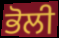
ਭੋਲੀ